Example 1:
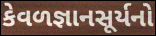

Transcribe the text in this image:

કેવળજ્ઞાનસૂર્યનો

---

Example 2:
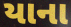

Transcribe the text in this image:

યાના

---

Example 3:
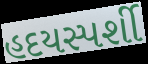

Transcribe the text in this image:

હદયસ્પર્શી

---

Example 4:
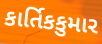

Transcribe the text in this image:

કાર્તિકકુમાર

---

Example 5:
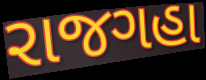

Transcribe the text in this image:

રાજગહા